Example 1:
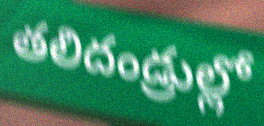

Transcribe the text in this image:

తలిదండ్రుల్లో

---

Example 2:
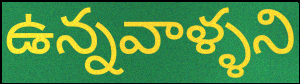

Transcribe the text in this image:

ఉన్నవాళ్ళని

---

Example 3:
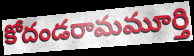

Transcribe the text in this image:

కోదండరామమూర్తి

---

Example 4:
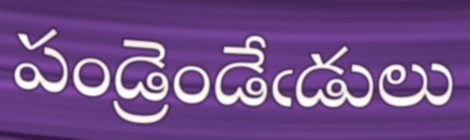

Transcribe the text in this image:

పండ్రెండేఁడులు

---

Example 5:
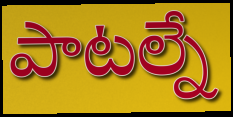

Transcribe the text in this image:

పాటల్నే